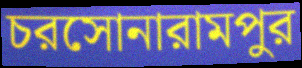
চরসোনারামপুর